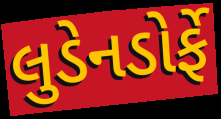
લુડેનડોર્ફે